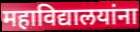
महाविद्यालयांना